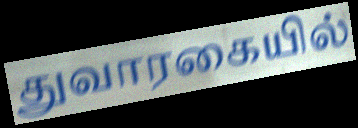
துவாரகையில்